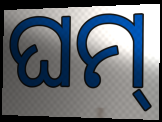
ଘମ୍